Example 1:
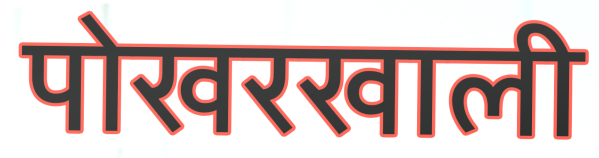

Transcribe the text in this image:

पोखरखाली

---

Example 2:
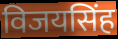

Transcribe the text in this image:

विजयसिंह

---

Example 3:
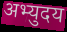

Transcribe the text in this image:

अभ्युदय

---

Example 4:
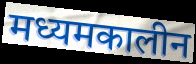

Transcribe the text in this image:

मध्यमकालीन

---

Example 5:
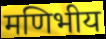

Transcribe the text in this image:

मणिभीय